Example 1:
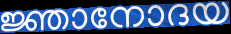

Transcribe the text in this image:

ജ്ഞാനോദയ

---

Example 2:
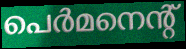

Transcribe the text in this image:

പെർമനെന്റ്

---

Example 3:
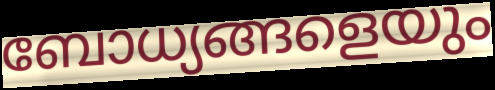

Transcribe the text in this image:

ബോധ്യങ്ങളെയും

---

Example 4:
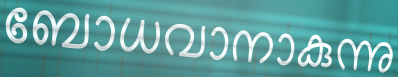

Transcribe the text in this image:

ബോധവാനാകുന്നു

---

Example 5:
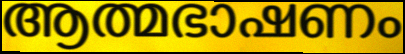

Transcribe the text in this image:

ആത്മഭാഷണം